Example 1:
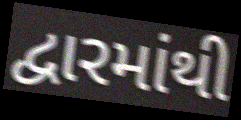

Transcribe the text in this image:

દ્વારમાંથી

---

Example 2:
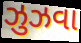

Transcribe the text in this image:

ઝુઝવા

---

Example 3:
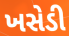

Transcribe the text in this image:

ખસેડી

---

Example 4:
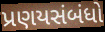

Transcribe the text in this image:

પ્રણયસંબંધો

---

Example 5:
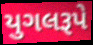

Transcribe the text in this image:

યુગલરૂપે